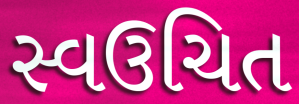
સ્વઉચિત